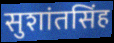
सुशांतसिंह